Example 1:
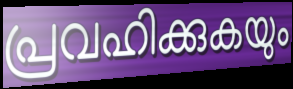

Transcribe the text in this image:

പ്രവഹിക്കുകയും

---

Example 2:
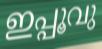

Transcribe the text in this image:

ഇപ്പൂവു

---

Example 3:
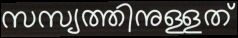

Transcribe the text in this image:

സസ്യത്തിനുള്ളത്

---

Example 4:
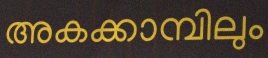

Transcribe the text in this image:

അകക്കാമ്പിലും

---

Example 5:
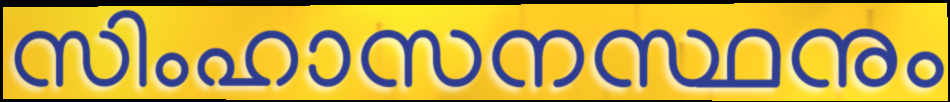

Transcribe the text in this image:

സിംഹാസനസ്ഥനും